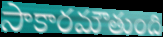
సాకారమౌతుంది